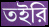
তইরি